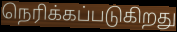
நெரிக்கப்படுகிறது